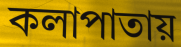
কলাপাতায়